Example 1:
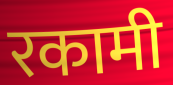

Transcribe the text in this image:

रकामी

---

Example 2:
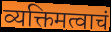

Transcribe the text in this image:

व्यक्तिमत्वाचं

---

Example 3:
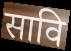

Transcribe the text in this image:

सावि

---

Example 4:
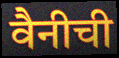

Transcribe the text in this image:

वैनीची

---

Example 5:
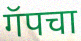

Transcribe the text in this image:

गॅपचा